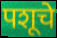
पशूचे